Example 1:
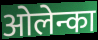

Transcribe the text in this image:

ओलेन्का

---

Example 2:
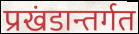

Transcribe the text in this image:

प्रखंडान्तर्गत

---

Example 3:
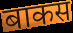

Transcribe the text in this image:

बाकस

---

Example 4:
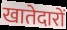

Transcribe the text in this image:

खातेदारों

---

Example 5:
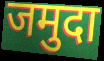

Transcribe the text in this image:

जमुदा